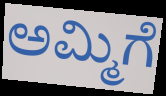
ಅಮ್ಮಿಗೆ